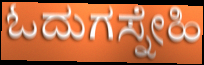
ಓದುಗಸ್ನೇಹಿ